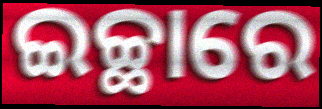
ଇଚ୍ଛାରେ